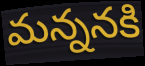
మన్ననకి